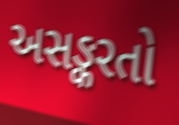
અસઙ્કરતો